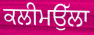
ਕਲੀਮਉੱਲਾ